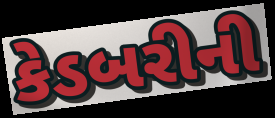
કેડબરીની